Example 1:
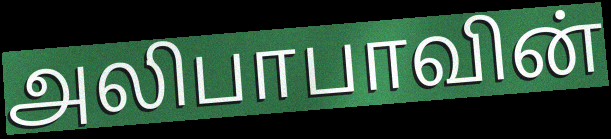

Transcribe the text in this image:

அலிபாபாவின்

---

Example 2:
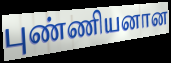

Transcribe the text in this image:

புண்ணியனான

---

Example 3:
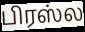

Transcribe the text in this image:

பிரஸ்ல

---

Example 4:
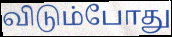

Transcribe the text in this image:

விடும்போது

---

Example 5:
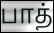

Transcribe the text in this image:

பாத்